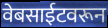
वेबसाईटवरून